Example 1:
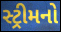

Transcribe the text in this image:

સ્ટ્રીમનો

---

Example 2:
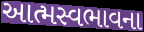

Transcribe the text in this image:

આત્મસ્વભાવના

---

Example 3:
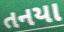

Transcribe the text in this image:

તનયા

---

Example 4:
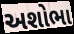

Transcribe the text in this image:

અશોભા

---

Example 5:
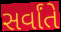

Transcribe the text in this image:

સર્વાંતે